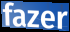
fazer